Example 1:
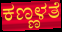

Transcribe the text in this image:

ಕಣ್ಣಳತೆ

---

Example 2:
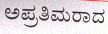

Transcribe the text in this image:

ಅಪ್ರತಿಮರಾದ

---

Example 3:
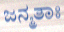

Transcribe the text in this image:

ಜನ್ಮತಾಃ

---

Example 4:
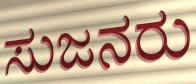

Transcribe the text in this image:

ಸುಜನರು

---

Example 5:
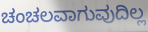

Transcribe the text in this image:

ಚಂಚಲವಾಗುವುದಿಲ್ಲ